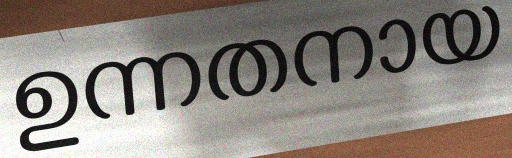
ഉന്നതനായ